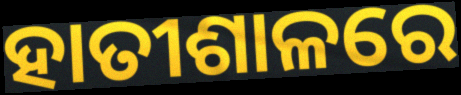
ହାତୀଶାଳରେ